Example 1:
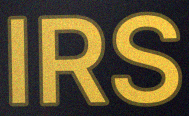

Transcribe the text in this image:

IRS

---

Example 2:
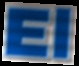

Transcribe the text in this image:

El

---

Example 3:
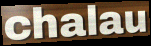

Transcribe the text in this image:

chalau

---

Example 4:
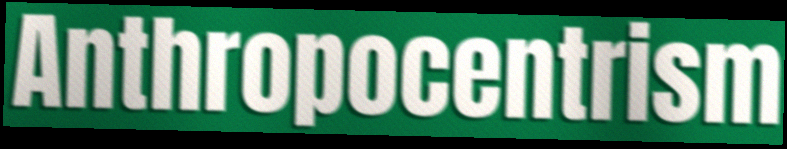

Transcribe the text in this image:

Anthropocentrism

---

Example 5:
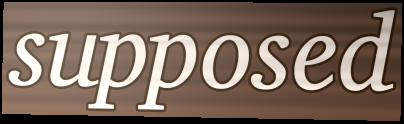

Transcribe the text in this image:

supposed